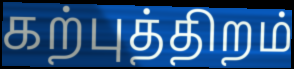
கற்புத்திறம்